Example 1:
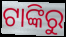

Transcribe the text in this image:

ଟାଙ୍କିରୁ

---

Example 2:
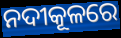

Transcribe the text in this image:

ନଦୀକୂଳରେ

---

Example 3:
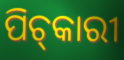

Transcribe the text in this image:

ପିଚ୍‌କାରୀ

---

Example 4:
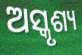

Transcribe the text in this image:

ଅସ୍କୃଶ୍ୟ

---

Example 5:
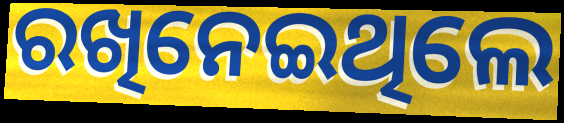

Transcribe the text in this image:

ରଖିନେଇଥିଲେ